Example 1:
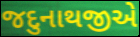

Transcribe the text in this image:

જદુનાથજીએ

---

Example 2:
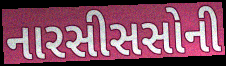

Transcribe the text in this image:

નારસીસસોની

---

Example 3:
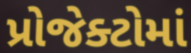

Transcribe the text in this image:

પ્રોજેક્ટોમાં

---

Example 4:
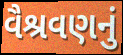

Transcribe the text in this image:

વૈશ્રવણનું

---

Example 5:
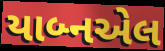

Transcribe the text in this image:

યાબ્નએલ